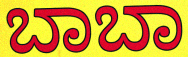
ಬಾಬಾ